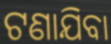
ଟଣାଯିବା